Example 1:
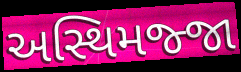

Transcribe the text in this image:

અસ્થિમજ્જા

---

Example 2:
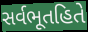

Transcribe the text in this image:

સર્વભૂતહિતે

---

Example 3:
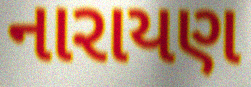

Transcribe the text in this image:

નારાયણ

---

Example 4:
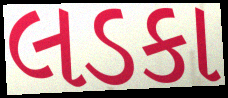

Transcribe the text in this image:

લડકા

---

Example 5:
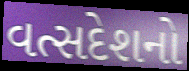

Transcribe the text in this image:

વત્સદેશનો